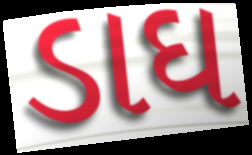
ડાઘ